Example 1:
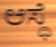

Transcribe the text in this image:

ಆಸ್ಥೆ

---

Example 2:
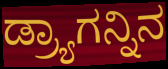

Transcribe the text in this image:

ಡ್ರ್ಯಾಗನ್ನಿನ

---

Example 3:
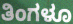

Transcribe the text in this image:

ತಿಂಗಳೂ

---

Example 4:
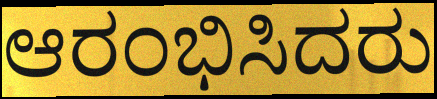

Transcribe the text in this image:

ಆರಂಭಿಸಿದರು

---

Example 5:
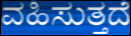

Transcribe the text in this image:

ವಹಿಸುತ್ತದೆ